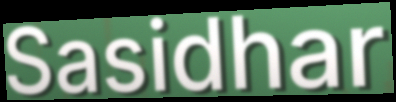
Sasidhar